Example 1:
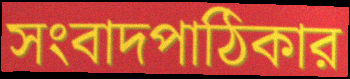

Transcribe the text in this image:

সংবাদপাঠিকার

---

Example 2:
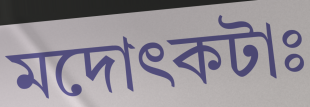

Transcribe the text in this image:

মদোৎকটাঃ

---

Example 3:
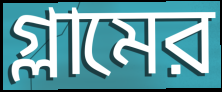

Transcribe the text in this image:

গ্লামের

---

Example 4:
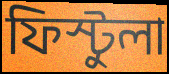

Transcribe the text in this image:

ফিস্টুলা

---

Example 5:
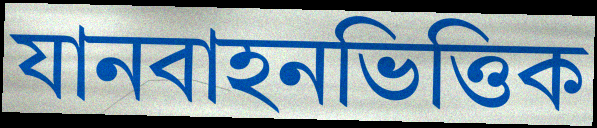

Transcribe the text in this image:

যানবাহনভিত্তিক